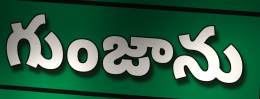
గుంజాను